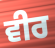
ਵੀਰ